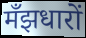
मँझधारों